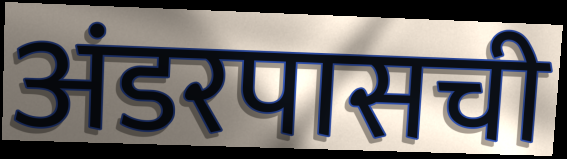
अंडरपासची